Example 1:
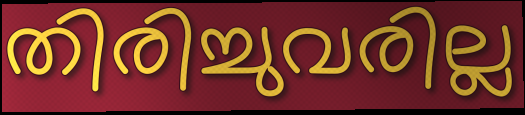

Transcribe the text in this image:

തിരിച്ചുവരില്ല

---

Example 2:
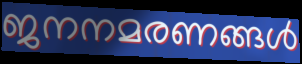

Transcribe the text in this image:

ജനനമരണങ്ങൾ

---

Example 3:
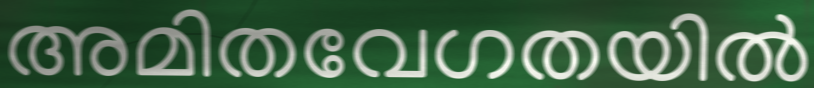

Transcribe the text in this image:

അമിതവേഗതയിൽ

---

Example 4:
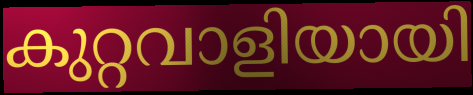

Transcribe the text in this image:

കുറ്റവാളിയായി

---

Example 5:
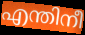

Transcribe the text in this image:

എന്തിനീ